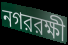
নগররক্ষী